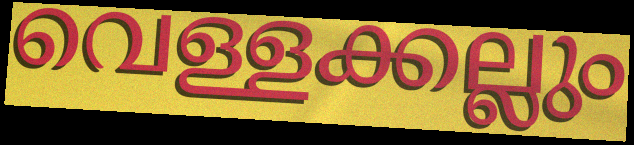
വെള്ളക്കല്ലും